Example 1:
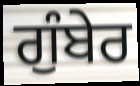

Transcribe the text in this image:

ਗੁੰਬੇਰ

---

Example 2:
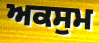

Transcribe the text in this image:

ਅਕਸੁਮ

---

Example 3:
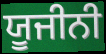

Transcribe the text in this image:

ਯੂਜੀਨੀ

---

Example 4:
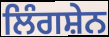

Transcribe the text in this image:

ਲਿੰਗਸ਼ੇਨ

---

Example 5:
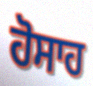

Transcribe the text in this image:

ਹੋਸਾਹ